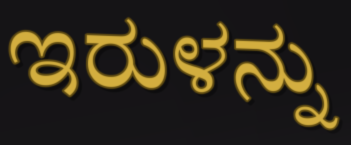
ಇರುಳನ್ನು